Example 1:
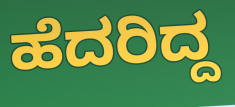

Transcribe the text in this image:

ಹೆದರಿದ್ದ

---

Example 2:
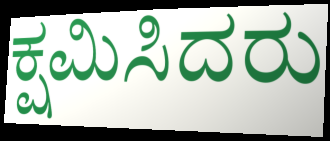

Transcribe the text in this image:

ಕ್ಷಮಿಸಿದರು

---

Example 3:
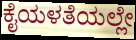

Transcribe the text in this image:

ಕೈಯಳತೆಯಲ್ಲೇ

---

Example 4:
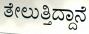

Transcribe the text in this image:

ತೇಲುತ್ತಿದ್ದಾನೆ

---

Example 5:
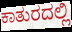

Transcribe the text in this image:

ಕಾತುರದಲ್ಲಿ